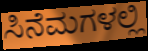
ಸಿನೆಮಗಳಲ್ಲಿ